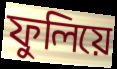
ফুলিয়ে